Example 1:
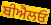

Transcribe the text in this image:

ਬੀਐਲਓ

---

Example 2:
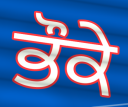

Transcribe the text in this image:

ਭੌਕੇ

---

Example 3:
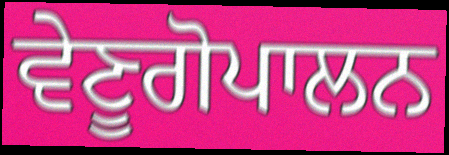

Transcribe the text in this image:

ਵੇਣੂਗੋਪਾਲਨ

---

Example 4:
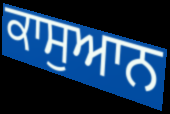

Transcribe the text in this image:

ਕਾਸੁਆਨ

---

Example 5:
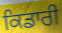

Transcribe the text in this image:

ਕਿਡਾਰੀ